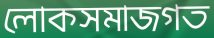
লোকসমাজগত